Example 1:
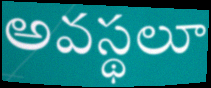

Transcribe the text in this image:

అవస్థలూ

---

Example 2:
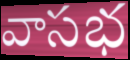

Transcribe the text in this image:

వాసభ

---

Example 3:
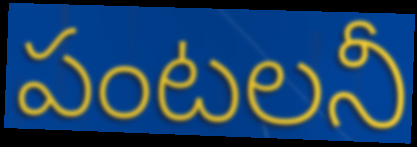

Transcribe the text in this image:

పంటలనీ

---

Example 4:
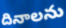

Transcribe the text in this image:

దినాలను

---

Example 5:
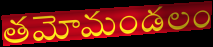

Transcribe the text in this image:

తమోమండలం